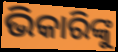
ଭିକାରିଙ୍କୁ